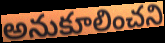
అనుకూలించని